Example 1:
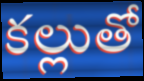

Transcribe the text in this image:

కల్లుతో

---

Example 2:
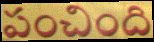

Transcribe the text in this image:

పంచింది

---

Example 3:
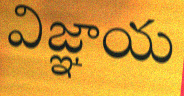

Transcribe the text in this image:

విజ్ఞాయ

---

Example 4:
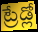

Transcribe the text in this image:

ట్రేడ్లో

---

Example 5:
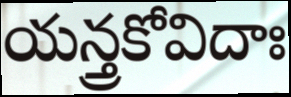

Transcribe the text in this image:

యన్త్రకోవిదాః